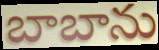
బాబాను